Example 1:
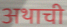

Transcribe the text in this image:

अथाची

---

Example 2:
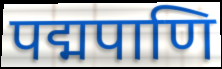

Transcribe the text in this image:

पद्मपाणि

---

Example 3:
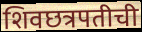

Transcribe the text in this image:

शिवछत्रपतीची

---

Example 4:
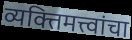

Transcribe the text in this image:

व्यक्तिमत्त्वांचा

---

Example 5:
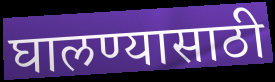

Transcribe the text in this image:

घालण्यासाठी